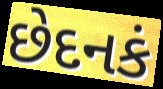
છેદનકં